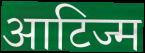
आटिज्म